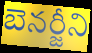
బెనర్జీని